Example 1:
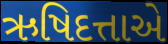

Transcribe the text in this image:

ઋષિદત્તાએ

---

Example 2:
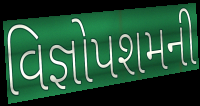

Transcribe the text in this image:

વિજ્ઞોપશમની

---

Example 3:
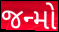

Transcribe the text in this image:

જન્મો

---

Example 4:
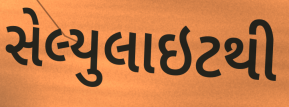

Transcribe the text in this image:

સેલ્યુલાઇટથી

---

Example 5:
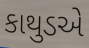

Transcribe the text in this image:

કાથુડએ